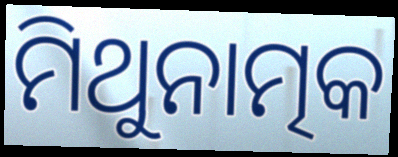
ମିଥୁନାତ୍ମକ